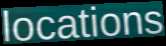
locations